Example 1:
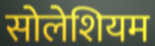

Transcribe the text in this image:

सोलेशियम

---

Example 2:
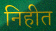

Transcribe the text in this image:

निहीत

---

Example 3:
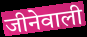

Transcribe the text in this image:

जीनेवाली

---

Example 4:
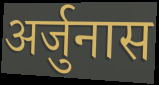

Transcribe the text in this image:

अर्जुनास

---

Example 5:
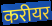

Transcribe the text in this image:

करीयर